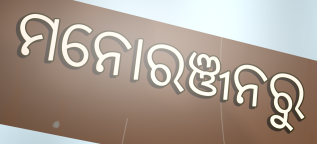
ମନୋରଞ୍ଜନରୁ